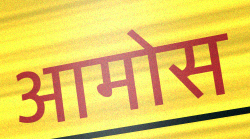
आमोस